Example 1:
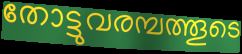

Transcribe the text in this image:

തോട്ടുവരമ്പത്തൂടെ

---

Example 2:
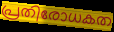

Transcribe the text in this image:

പ്രതിരോധകത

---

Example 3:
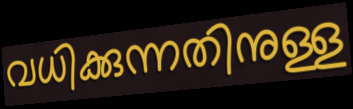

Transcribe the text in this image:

വധിക്കുന്നതിനുള്ള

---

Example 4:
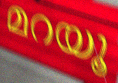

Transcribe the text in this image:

മറയൂ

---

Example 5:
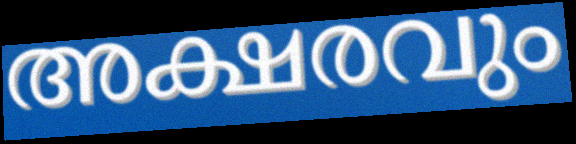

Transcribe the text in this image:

അക്ഷരവും